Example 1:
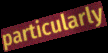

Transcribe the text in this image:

particularly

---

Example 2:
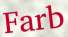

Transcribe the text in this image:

Farb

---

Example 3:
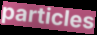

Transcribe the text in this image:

particles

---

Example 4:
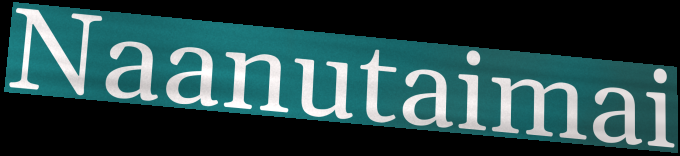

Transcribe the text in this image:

Naanutaimai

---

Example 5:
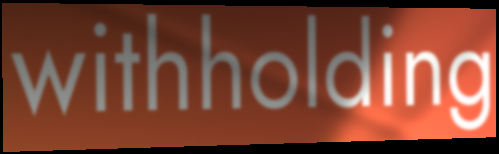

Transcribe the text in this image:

withholding